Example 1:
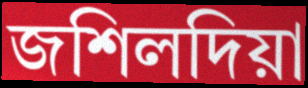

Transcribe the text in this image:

জশিলদিয়া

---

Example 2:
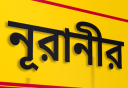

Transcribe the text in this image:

নূরানীর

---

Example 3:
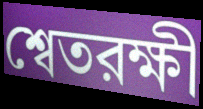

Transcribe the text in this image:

শ্বেতরক্ষী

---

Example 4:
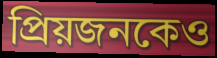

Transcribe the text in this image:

প্রিয়জনকেও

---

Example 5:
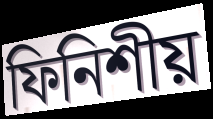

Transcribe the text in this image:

ফিনিশীয়